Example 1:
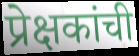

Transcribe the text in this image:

प्रेक्षकांची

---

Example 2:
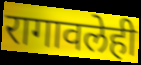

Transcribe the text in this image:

रागावलेही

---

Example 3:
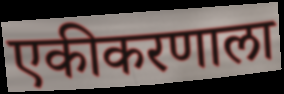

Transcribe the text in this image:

एकीकरणाला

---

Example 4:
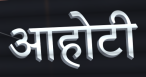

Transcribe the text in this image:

आहोटी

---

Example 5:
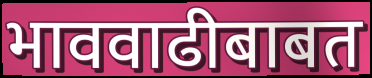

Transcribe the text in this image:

भाववाढीबाबत